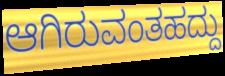
ಆಗಿರುವಂತಹದ್ದು